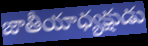
జాతీయాధ్యక్షుడు